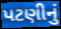
પટણીનું